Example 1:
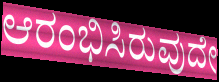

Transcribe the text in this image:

ಆರಂಭಿಸಿರುವುದೇ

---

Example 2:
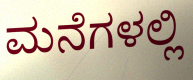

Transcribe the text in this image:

ಮನೆಗಳಲ್ಲಿ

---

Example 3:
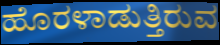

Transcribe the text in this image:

ಹೊರಳಾಡುತ್ತಿರುವ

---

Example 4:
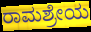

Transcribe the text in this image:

ರಾಮಶ್ರೇಯ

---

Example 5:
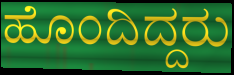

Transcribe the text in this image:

ಹೊಂದಿದ್ದರು